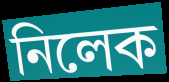
নিলেক